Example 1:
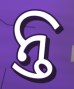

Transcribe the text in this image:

ନ୍ତ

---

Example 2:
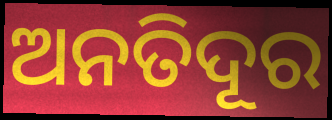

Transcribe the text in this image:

ଅନତିଦୂର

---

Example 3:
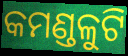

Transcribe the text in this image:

କମଣ୍ଡଳୁଟି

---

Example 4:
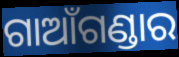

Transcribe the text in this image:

ଗାଆଁଗଣ୍ଡାର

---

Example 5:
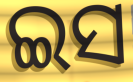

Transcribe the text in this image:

ଇସ